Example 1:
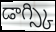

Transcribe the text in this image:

డాగ్స్కి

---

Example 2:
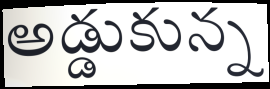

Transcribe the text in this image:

అడ్డుకున్న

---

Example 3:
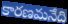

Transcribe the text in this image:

కారణమనేది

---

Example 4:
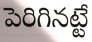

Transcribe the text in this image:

పెరిగినట్టే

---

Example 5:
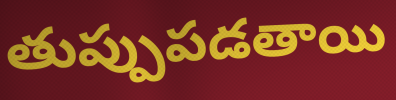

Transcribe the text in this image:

తుప్పుపడతాయి